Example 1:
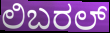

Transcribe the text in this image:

ಲಿಬರಲ್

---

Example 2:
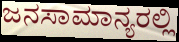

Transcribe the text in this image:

ಜನಸಾಮಾನ್ಯರಲ್ಲಿ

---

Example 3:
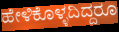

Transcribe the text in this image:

ಹೇಳಿಕೊಳ್ಳದಿದ್ದರೂ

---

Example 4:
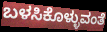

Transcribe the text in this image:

ಬಳಸಿಕೊಳ್ಳುವಂತೆ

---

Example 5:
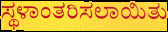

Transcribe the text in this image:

ಸ್ಥಳಾಂತರಿಸಲಾಯಿತು